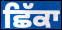
ਛਿੱਕਾ